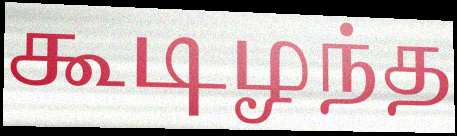
கூடிழந்த